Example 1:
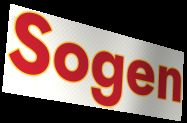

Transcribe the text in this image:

Sogen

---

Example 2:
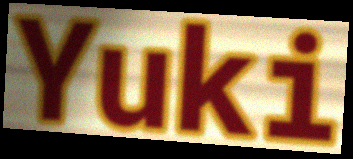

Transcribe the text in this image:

Yuki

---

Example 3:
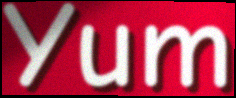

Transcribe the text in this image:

Yum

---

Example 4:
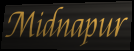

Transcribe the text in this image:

Midnapur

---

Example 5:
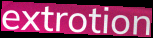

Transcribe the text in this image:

extrotion